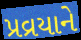
પ્રવ્રયાને